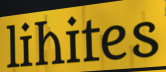
lihites